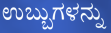
ಉಬ್ಬುಗಳನ್ನು